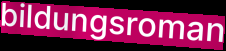
bildungsroman